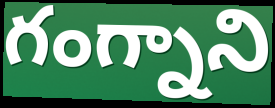
గంగ్నాని